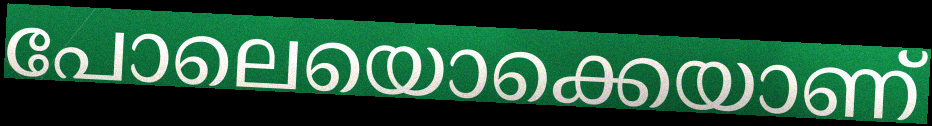
പോലെയൊക്കെയാണ്